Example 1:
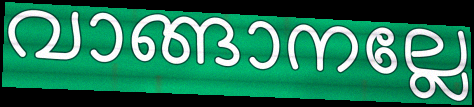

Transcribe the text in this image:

വാങ്ങാനല്ലേ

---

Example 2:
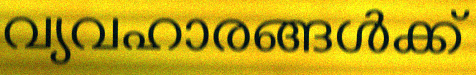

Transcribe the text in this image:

വ്യവഹാരങ്ങൾക്ക്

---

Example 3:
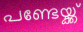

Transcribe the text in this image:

പണ്ടേയ്ക്ക്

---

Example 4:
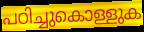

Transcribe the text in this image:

പഠിച്ചുകൊള്ളുക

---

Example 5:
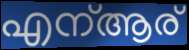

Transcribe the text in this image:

എന്ആര്